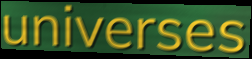
universes